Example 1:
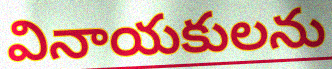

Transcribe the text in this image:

వినాయకులను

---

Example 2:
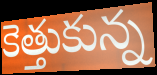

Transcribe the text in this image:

కెత్తుకున్న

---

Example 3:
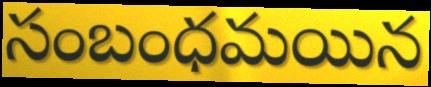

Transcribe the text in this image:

సంబంధమయిన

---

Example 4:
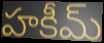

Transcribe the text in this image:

హకీమ్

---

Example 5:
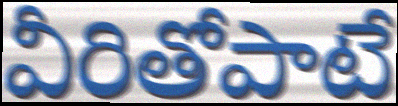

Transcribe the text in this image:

వీరితోపాటే